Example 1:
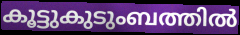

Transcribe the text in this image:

കൂട്ടുകുടുംബത്തിൽ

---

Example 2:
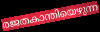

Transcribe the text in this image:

രജതകാന്തിയെഴുന്ന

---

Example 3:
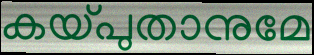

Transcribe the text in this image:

കയ്പുതാനുമേ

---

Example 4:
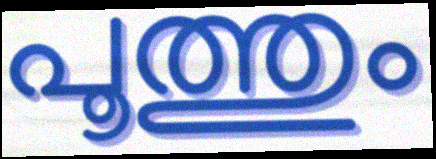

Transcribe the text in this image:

പൂത്തും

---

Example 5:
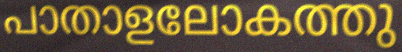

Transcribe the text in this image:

പാതാളലോകത്തു